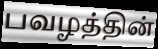
பவழத்தின்